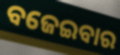
ବଜେଇବାର